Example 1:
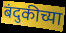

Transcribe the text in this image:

बंदुकीच्या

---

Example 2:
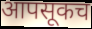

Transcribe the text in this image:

आपसूकच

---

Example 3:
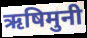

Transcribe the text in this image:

ऋषिमुनी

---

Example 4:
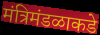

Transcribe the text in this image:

मंत्रिमंडळाकडे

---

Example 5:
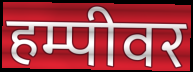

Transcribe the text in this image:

हम्पीवर